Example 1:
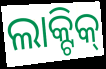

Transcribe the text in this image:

ଲାକ୍ଟିକ୍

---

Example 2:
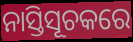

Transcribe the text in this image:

ନାସ୍ତିସୂଚକରେ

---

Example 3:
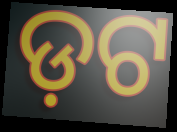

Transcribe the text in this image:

ଡ଼ଟ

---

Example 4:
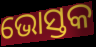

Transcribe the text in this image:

ଭୋସ୍ତକ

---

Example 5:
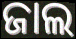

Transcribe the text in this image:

ଜାଲ